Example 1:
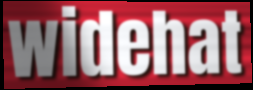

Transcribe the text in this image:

widehat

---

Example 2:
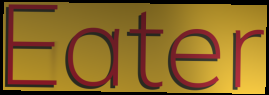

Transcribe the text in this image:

Eater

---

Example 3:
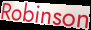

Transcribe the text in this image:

Robinson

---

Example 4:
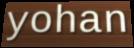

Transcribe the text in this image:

yohan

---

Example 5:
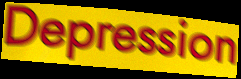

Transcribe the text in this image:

Depression